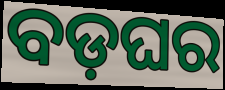
ବଡ଼ଘର